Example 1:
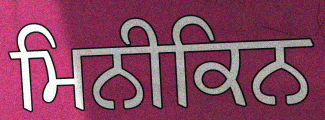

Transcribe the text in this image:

ਮਿਨੀਕਿਨ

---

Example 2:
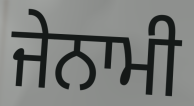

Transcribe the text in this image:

ਜੇਨਾਮੀ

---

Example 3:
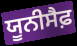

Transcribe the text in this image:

ਯੂਨੀਸੈਫ਼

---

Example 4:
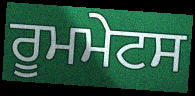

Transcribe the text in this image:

ਰੂਮਮੇਟਸ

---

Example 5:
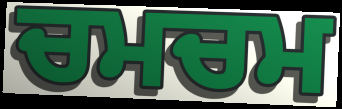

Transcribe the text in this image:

ਚਮਚਮ